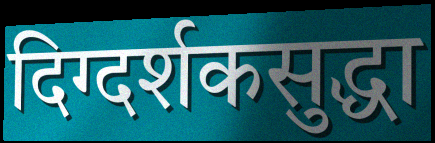
दिग्दर्शकसुद्धा